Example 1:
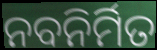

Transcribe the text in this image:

ନବନିର୍ମିତ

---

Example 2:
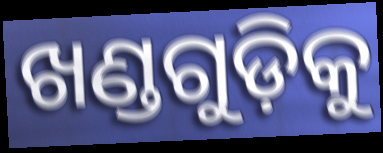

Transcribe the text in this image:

ଖଣ୍ଡଗୁଡ଼ିକୁ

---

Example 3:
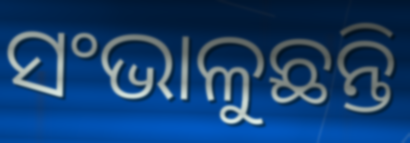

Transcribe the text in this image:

ସଂଭାଳୁଛନ୍ତି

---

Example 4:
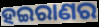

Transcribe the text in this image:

ହଇରାଣର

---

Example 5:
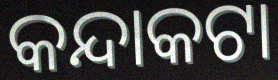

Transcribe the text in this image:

କନ୍ଦାକଟା